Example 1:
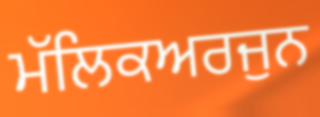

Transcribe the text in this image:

ਮੱਲਿਕਅਰਜੁਨ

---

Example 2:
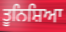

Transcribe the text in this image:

ਤੂਨਿਸ਼ਿਆ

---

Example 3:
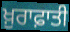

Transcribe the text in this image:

ਖ਼ੁਰਾਫ਼ਾਤੀ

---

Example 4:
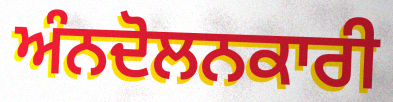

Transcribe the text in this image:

ਅੰਨਦੋਲਨਕਾਰੀ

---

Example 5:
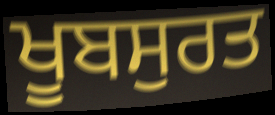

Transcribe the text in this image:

ਖੂਬਸੁਰਤ